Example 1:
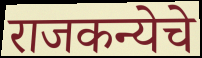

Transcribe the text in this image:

राजकन्येचे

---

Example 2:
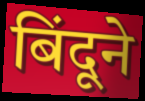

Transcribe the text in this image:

बिंदूने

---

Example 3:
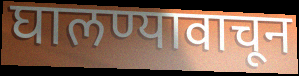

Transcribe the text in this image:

घालण्यावाचून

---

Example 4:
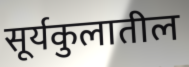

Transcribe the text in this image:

सूर्यकुलातील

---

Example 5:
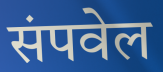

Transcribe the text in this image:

संपवेल